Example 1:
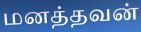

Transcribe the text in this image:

மனத்தவன்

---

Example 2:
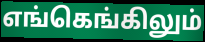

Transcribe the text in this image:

எங்கெங்கிலும்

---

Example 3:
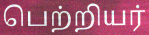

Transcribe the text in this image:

பெற்றியர்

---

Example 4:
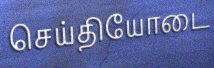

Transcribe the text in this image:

செய்தியோடை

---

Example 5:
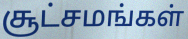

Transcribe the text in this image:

சூட்சமங்கள்